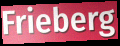
Frieberg